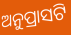
ଅନୁପ୍ରାସଟି